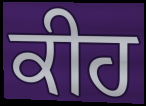
ਕੀਹ